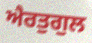
ਐਰਤੁਗੁਲ